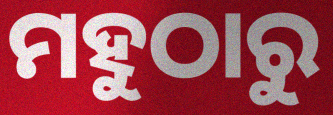
ମହୁଠାରୁ